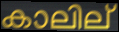
കാലില്